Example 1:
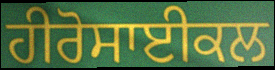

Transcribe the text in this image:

ਹੀਰੋਸਾਈਕਲ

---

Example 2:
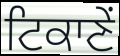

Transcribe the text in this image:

ਟਿਕਾਣੇਂ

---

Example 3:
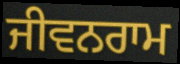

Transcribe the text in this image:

ਜੀਵਨਰਾਮ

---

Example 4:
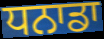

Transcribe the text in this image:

ਧਨਾਡਾ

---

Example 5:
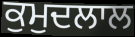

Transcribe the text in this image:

ਕੁਮੁਦਲਾਲ